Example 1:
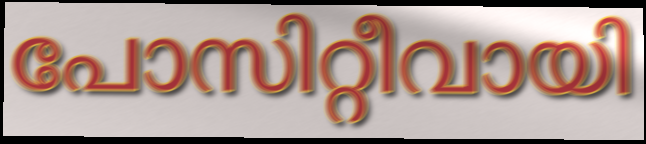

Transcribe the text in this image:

പോസിറ്റീവായി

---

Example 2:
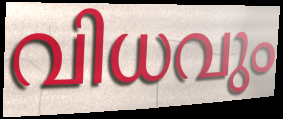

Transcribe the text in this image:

വിധവും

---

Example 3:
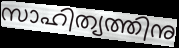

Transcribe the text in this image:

സാഹിത്യത്തിനു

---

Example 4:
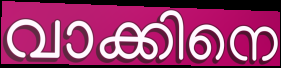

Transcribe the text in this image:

വാക്കിനെ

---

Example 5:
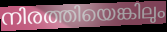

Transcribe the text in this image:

നിരത്തിയെങ്കിലും